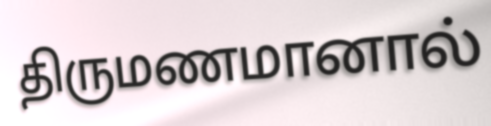
திருமணமானால்